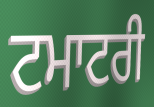
ਟਮਾਟਰੀ